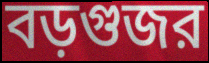
বড়গুজর